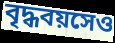
বৃদ্ধবয়সেও